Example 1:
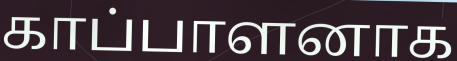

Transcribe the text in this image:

காப்பாளனாக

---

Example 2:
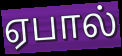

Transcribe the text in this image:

ஏபால்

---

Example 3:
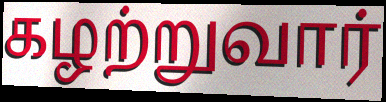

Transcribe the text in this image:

கழற்றுவார்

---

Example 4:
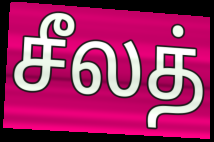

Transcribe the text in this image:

சீலத்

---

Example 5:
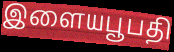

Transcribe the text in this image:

இளையபூபதி